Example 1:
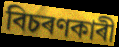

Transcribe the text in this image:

বিচৰণকাৰী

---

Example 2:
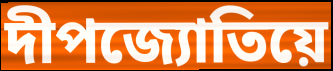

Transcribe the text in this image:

দীপজ্যোতিয়ে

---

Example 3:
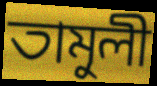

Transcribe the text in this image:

তামুলী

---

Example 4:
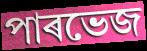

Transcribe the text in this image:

পাৰভেজ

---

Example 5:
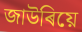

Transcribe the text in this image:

জাউৰিয়ে